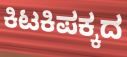
ಕಿಟಕಿಪಕ್ಕದ